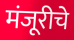
मंजूरीचे